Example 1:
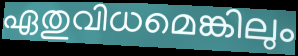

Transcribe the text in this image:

ഏതുവിധമെങ്കിലും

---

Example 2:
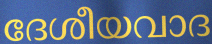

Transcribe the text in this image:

ദേശീയവാദ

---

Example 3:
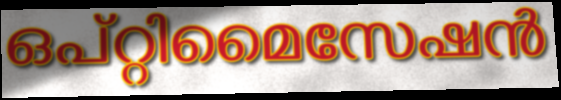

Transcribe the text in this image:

ഒപ്റ്റിമൈസേഷൻ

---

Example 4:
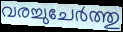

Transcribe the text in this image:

വരച്ചുചേർത്തു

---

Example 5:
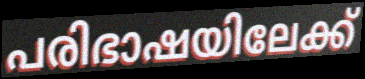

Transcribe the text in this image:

പരിഭാഷയിലേക്ക്